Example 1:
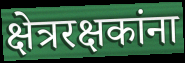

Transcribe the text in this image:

क्षेत्ररक्षकांना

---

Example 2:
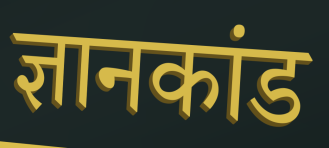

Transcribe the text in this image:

ज्ञानकांड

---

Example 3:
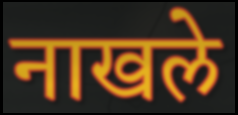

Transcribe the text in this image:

नाखले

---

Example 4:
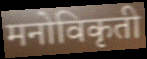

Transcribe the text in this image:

मनोविकृती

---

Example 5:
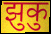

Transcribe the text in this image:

झुकु